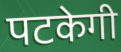
पटकेगी